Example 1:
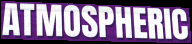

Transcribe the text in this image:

ATMOSPHERIC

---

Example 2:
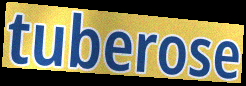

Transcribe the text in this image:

tuberose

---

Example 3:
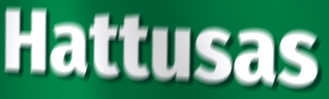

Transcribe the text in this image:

Hattusas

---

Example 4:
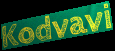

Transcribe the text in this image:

Kodvavi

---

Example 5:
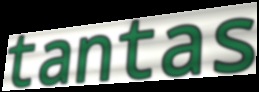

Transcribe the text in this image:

tantas